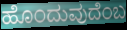
ಹೊಂದುವುದೆಂಬ